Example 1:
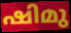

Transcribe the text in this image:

ഷിമു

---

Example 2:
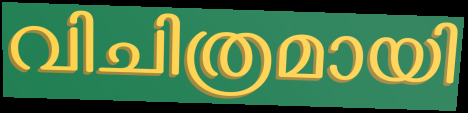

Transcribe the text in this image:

വിചിത്രമായി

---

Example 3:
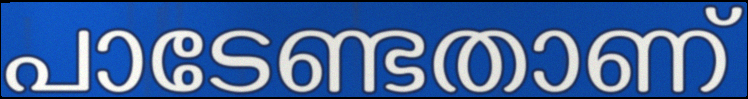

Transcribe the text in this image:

പാടേണ്ടതാണ്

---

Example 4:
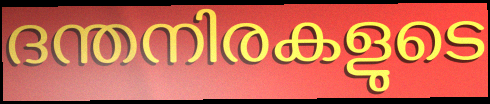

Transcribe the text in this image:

ദന്തനിരകളുടെ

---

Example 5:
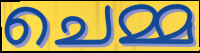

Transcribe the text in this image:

ചെമ്മ